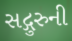
સદ્ગુરુની